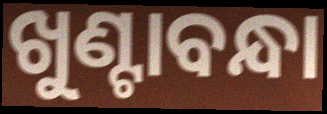
ଖୁଣ୍ଟାବନ୍ଧା